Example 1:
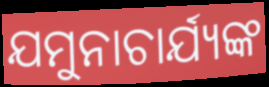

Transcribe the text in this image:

ଯମୁନାଚାର୍ଯ୍ୟଙ୍କ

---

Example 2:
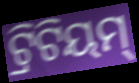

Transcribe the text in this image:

ଟ୍ରିଟିୟମ୍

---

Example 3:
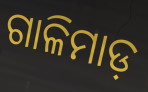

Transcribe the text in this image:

ଗାଳିମାଡ଼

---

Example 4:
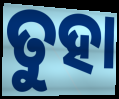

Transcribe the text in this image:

ତୁହା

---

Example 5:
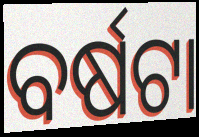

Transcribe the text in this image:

ବର୍ଷଟା